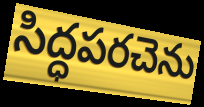
సిద్ధపరచెను